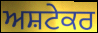
ਅਸ਼ਟੇਕਰ